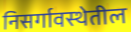
निसर्गावस्थेतील